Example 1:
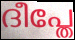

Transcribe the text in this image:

ദീപ്തേ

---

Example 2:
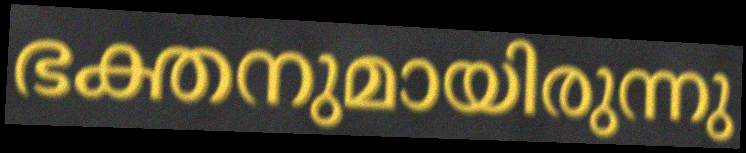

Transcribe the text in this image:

ഭക്തനുമായിരുന്നു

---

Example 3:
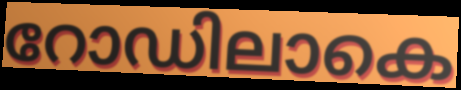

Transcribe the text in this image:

റോഡിലാകെ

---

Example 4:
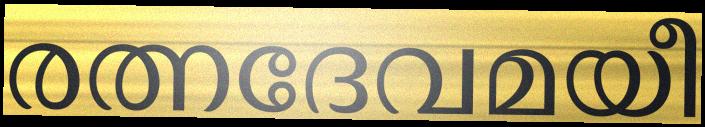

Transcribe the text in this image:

രത്നദേവമയീ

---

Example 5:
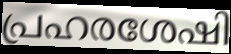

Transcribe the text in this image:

പ്രഹരശേഷി